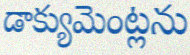
డాక్యుమెంట్లను